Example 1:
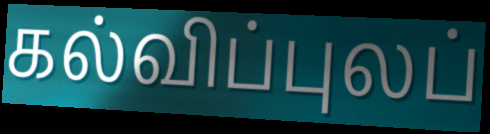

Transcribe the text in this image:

கல்விப்புலப்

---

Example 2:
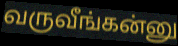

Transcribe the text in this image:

வருவீங்கன்னு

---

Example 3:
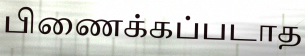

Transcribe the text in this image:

பிணைக்கப்படாத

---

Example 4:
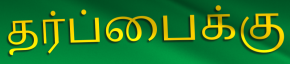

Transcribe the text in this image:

தர்ப்பைக்கு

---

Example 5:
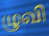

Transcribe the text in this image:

ழுவி